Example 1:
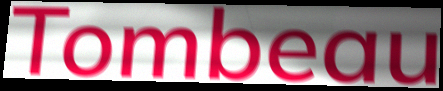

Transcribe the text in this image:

Tombeau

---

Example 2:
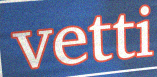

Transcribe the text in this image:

vetti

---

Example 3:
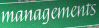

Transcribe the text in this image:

managements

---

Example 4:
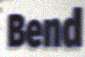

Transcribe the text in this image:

Bend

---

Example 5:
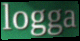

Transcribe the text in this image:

logga